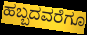
ಹಬ್ಬದವರೆಗೂ